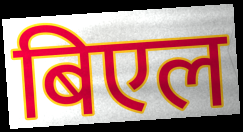
बिएल